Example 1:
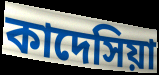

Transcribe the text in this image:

কাদেসিয়া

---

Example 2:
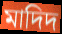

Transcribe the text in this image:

মাদিদ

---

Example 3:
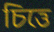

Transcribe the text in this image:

চিত্তে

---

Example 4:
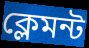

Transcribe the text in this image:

ক্লেমন্ট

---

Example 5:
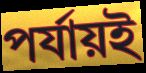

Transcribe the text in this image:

পর্যায়ই